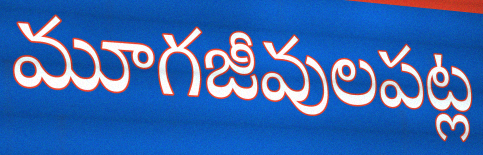
మూగజీవులపట్ల